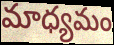
మాధ్యమం